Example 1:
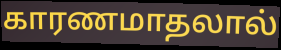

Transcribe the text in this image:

காரணமாதலால்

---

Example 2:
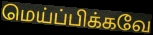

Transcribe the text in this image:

மெய்ப்பிக்கவே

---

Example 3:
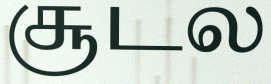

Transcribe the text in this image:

சூடல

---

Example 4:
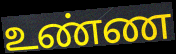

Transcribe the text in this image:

உண்ண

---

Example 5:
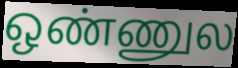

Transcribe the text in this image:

ஒண்ணுல